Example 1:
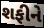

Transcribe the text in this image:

શફીને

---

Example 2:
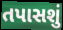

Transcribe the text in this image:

તપાસશું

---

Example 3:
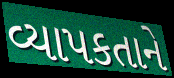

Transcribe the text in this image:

વ્યાપકતાને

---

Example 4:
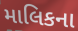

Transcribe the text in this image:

માલિકના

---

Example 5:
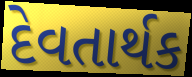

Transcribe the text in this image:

દેવતાર્થક